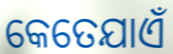
କେତେଯାଏଁ